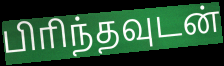
பிரிந்தவுடன்